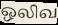
ஒலிவ